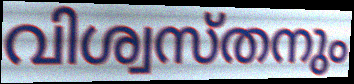
വിശ്വസ്തനും